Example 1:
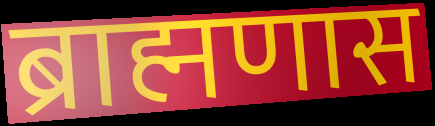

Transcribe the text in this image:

ब्राह्मणास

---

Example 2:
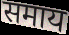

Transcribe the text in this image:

समाय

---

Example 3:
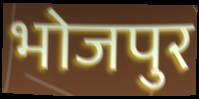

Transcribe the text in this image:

भोजपुर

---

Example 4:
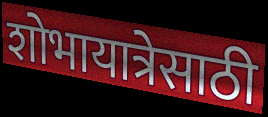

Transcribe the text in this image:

शोभायात्रेसाठी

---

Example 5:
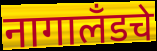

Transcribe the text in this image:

नागालँडचे